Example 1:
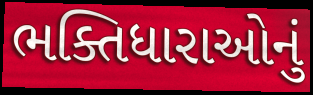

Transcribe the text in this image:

ભક્તિધારાઓનું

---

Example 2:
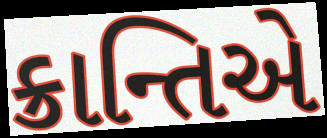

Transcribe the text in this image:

ક્રાન્તિએ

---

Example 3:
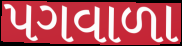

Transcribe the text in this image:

પગવાળા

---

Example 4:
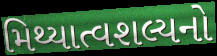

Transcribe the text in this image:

મિથ્યાત્વશલ્યનો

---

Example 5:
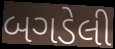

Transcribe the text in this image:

બગડેલી